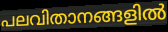
പലവിതാനങ്ങളിൽ